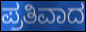
ಪ್ರತಿವಾದ